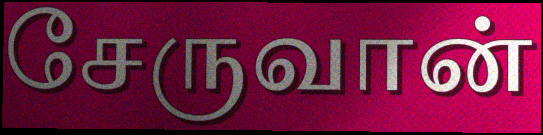
சேருவான்